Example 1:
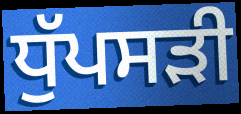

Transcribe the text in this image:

ਧੁੱਪਸੜੀ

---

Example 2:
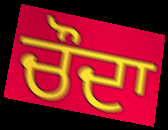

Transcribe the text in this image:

ਚੌਦਾ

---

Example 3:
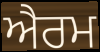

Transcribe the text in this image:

ਐਰਮ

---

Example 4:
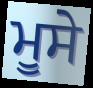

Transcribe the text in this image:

ਮੂਸੇ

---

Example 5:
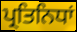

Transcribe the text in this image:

ਪ੍ਰਤਿਨਿਧਾਂ